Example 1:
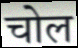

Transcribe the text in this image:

चोल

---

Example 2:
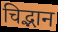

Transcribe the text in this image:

चिद्भान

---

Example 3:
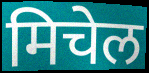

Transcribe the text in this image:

मिचेल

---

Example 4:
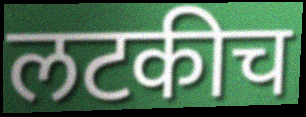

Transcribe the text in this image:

लटकीच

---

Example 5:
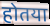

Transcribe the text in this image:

होतया